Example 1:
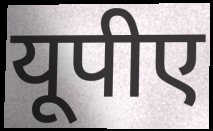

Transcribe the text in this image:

यूपीए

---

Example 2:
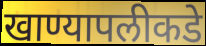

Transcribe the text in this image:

खाण्यापलीकडे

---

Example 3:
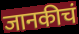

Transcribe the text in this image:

जानकीचं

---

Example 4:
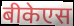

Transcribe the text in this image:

बीकेएस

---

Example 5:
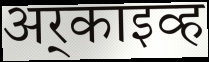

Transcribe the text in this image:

अर्काइव्ह